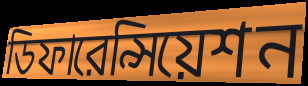
ডিফারেন্সিয়েশন